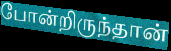
போன்றிருந்தான்